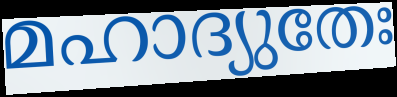
മഹാദ്യുതേഃ